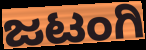
ಜಟಂಗಿ